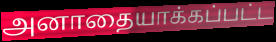
அனாதையாக்கப்பட்ட